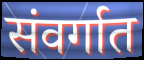
संवर्गात